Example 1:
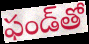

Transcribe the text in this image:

ఫండ్‌తో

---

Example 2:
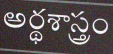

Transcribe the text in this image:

అర్థశాస్త్రం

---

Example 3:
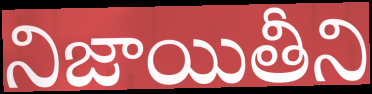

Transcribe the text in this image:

నిజాయితీని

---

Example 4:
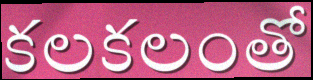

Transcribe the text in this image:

కలకలంతో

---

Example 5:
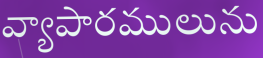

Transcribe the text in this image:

వ్యాపారములును